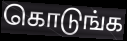
கொடுங்க